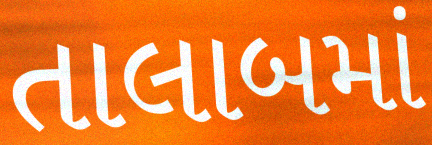
તાલાબમાં